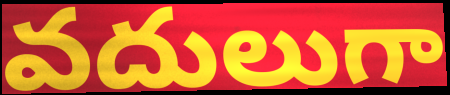
వదులుగా